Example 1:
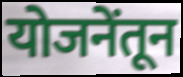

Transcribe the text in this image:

योजनेंतून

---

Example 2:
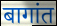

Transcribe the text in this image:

बागांत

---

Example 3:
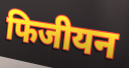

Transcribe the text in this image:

फिजीयन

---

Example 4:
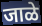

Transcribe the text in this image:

जाळे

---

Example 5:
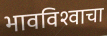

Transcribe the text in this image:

भावविश्वाचा